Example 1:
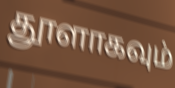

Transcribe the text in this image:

தூளாகவும்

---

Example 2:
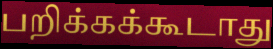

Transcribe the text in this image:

பறிக்கக்கூடாது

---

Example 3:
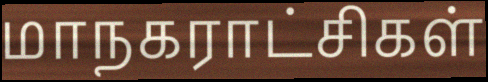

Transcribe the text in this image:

மாநகராட்சிகள்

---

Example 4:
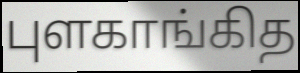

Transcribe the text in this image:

புளகாங்கித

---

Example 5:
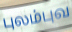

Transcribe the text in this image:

புலம்புவ